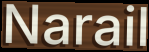
Narail